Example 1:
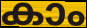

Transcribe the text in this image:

കാം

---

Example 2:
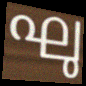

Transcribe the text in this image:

ഘു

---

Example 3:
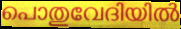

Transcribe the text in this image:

പൊതുവേദിയിൽ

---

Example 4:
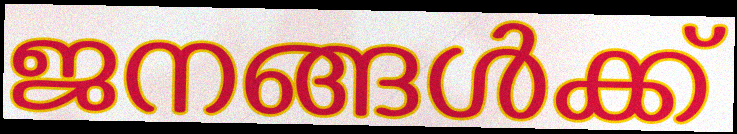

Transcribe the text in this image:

ജനങ്ങൾക്ക്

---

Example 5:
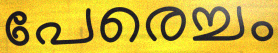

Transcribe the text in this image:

പേരെച്ചം